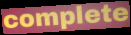
complete